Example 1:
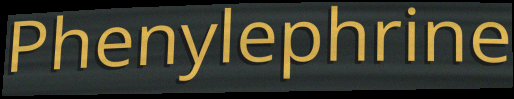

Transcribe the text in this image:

Phenylephrine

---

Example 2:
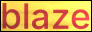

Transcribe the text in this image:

blaze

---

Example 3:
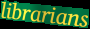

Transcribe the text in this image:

librarians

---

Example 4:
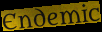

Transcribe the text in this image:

Endemic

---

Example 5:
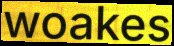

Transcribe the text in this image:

woakes